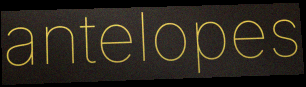
antelopes